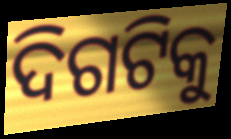
ଦିଗଟିକୁ